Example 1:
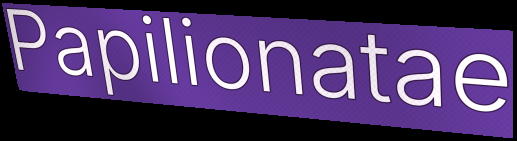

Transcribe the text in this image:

Papilionatae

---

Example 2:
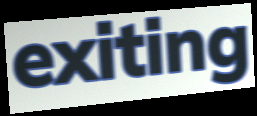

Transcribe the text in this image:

exiting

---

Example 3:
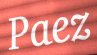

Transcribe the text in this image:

Paez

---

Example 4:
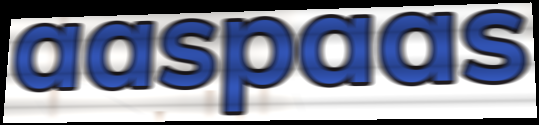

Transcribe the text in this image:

aaspaas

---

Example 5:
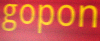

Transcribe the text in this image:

gopon